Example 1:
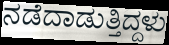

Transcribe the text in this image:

ನಡೆದಾಡುತ್ತಿದ್ದಳು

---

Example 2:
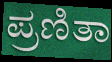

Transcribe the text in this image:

ಪ್ರಣಿತಾ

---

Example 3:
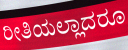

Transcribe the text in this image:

ರೀತಿಯಲ್ಲಾದರೂ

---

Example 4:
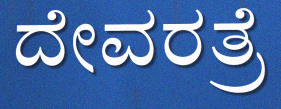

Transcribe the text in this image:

ದೇವರತ್ರೆ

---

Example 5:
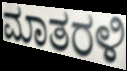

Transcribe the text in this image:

ಮಾತರಳಿ